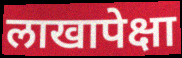
लाखापेक्षा